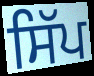
ਸਿੱਪ